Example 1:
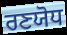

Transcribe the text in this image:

ਰਣਯੋਧ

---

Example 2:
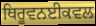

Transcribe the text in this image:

ਥਿਰੂਵਨਈਕਵਲ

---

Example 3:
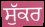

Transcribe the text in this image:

ਸੁੱਕਰ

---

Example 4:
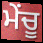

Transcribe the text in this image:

ਮੇਂਚੂ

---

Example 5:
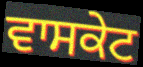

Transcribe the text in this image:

ਵਾਸਕੇਟ